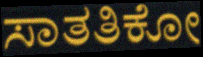
ಸಾತತಿಕೋ